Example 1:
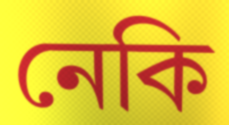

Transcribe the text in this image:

নেকি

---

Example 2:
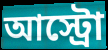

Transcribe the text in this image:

আস্ট্রো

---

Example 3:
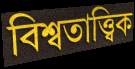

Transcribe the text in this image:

বিশ্বতাত্ত্বিক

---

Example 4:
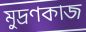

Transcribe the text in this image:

মুদ্রণকাজ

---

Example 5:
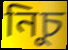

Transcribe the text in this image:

নিচু